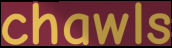
chawls